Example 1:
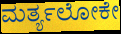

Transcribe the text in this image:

ಮರ್ತ್ಯಲೋಕೇ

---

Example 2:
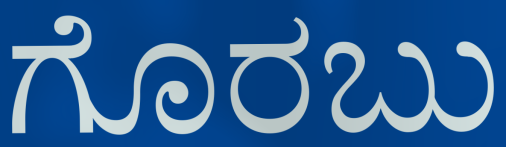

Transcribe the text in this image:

ಗೊರಬು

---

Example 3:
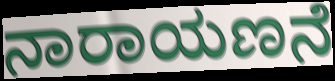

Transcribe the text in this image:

ನಾರಾಯಣನೆ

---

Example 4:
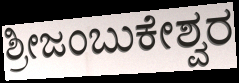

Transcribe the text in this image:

ಶ್ರೀಜಂಬುಕೇಶ್ವರ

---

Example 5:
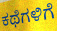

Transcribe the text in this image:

ಕಥೆಗಳಿಗೆ